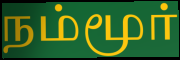
நம்மூர்